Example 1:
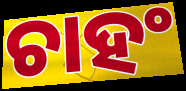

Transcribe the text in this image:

ଚାହଂ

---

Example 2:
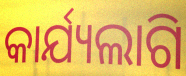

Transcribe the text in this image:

କାର୍ଯ୍ୟଲାଗି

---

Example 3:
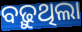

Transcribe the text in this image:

ବଢ଼ୁଥିଲା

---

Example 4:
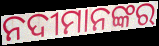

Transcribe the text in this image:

ନଦୀମାନଙ୍କର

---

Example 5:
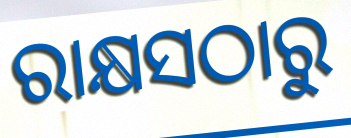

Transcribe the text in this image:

ରାକ୍ଷସଠାରୁ